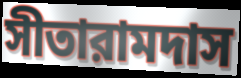
সীতারামদাস